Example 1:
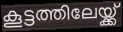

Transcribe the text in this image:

കൂട്ടത്തിലേയ്ക്ക്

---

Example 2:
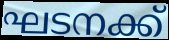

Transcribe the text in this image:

ഘടനക്ക്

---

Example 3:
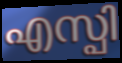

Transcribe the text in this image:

എസ്പി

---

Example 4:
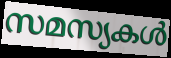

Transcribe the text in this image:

സമസ്യകൾ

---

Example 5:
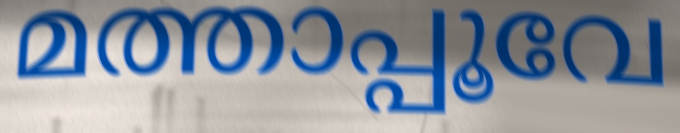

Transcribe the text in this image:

മത്താപ്പൂവേ